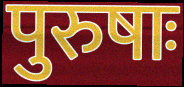
पुरुषाः